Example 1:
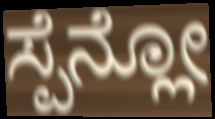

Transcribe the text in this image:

ಸ್ಪೆನ್ಲೋ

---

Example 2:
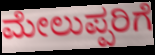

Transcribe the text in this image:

ಮೇಲುಪ್ಪರಿಗೆ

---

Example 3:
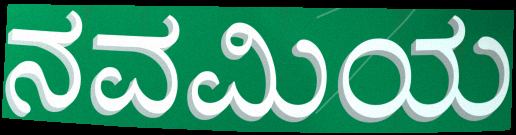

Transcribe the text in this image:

ನವಮಿಯ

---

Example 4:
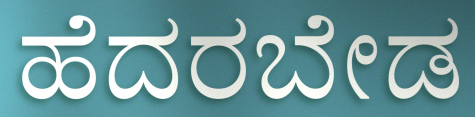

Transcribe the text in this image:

ಹೆದರಬೇಡ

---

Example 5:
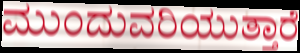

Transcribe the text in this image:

ಮುಂದುವರಿಯುತ್ತಾರೆ